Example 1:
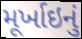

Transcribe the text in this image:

મૂર્ખાઇનું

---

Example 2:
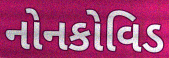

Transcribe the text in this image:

નોનકોવિડ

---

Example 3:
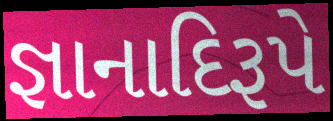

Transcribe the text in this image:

જ્ઞાનાદિરૂપે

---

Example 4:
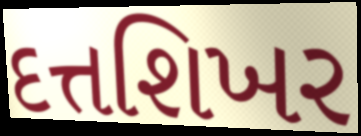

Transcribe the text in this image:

દત્તશિખર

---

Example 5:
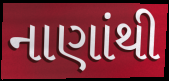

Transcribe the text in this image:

નાણાંથી